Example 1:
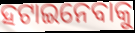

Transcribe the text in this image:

ହଟାଇନେବାକୁ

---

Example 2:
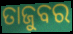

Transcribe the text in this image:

ତାଜୁବର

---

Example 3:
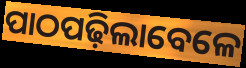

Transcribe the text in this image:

ପାଠପଢ଼ିଲାବେଳେ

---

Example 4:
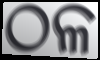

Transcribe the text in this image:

ଠଳ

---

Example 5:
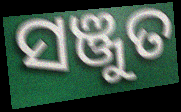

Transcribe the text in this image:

ସଞ୍ଜୁତ